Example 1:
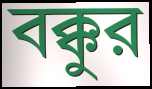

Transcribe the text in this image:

বক্কুর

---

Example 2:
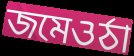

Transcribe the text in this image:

জমেওঠা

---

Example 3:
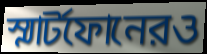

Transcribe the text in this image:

স্মার্টফোনেরও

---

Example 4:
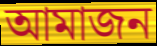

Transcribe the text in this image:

আমাজন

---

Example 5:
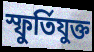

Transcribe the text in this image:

স্ফুর্তিযুক্ত